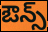
ఔన్స్